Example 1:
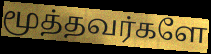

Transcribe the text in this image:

மூத்தவர்களே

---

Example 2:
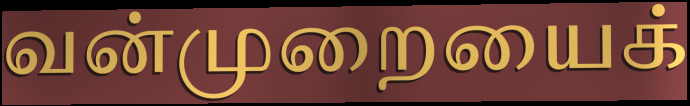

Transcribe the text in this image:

வன்முறையைக்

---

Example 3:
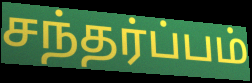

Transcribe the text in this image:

சந்தர்ப்பம்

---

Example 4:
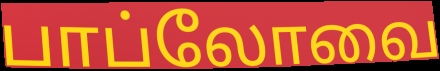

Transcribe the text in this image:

பாப்லோவை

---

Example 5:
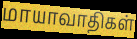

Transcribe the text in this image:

மாயாவாதிகள்